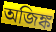
অজিঙ্ক